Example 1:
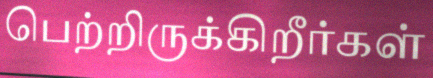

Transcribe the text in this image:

பெற்றிருக்கிறீர்கள்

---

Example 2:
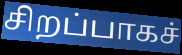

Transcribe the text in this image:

சிறப்பாகச்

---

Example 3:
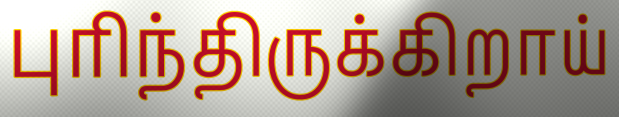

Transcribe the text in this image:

புரிந்திருக்கிறாய்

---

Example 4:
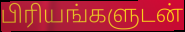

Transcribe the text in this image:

பிரியங்களுடன்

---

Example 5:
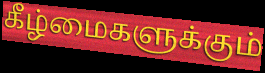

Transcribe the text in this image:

கீழ்மைகளுக்கும்